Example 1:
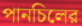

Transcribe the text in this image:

পানচিলের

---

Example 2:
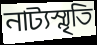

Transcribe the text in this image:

নাট্যস্মৃতি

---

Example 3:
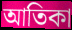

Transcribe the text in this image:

আতিকা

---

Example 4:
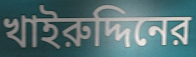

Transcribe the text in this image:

খাইরুদ্দিনের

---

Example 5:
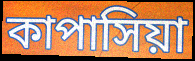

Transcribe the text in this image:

কাপাসিয়া